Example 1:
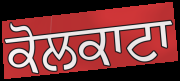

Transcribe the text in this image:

ਕੋਲਕਾਟਾ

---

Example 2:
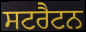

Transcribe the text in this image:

ਸਟਰੈਟਨ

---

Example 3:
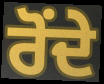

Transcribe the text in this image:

ਰੋਂਦੇ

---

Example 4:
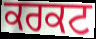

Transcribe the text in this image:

ਕਰਕਟ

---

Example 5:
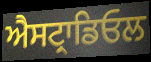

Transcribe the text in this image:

ਐਸਟ੍ਰਾਡਿਓਲ